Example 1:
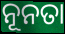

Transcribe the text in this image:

ନୂନତା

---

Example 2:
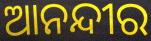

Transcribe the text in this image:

ଆନନ୍ଦୀର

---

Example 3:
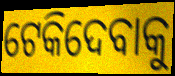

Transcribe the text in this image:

ଟେକିଦେବାକୁ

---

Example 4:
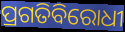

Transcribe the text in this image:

ପ୍ରଗତିବିରୋଧୀ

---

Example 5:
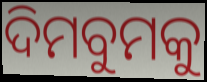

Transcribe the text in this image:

ଦିମବୁମକୁ